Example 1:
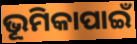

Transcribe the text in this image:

ଭୂମିକାପାଇଁ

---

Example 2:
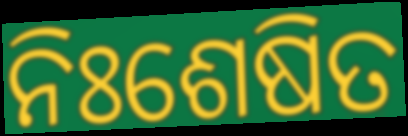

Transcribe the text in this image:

ନିଃଶେଷିତ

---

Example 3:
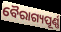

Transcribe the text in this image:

ବୈରାଗ୍ୟପୂର୍ଣ୍ଣ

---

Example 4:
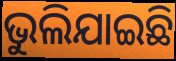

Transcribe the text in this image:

ଭୁଲିଯାଇଛି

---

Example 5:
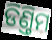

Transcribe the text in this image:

ଡିଣ୍ତିମ